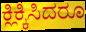
ಕ್ಲಿಕ್ಕಿಸಿದರೂ